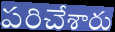
పరిచేశారు